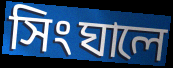
সিংঘালে